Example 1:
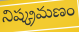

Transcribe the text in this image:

నిష్క్రమణం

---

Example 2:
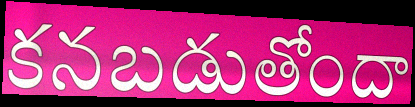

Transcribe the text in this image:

కనబడుతోందా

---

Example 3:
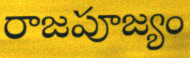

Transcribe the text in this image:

రాజపూజ్యం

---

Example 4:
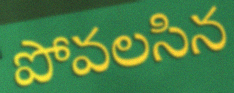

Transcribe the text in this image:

పోవలసిన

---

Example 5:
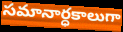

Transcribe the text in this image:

సమానార్ధకాలుగా